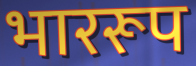
भाररूप